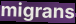
migrans